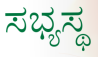
ಸಭ್ಯಸ್ಥ